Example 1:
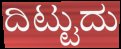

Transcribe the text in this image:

ದಿಟ್ಟುದು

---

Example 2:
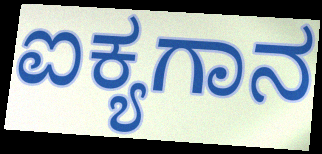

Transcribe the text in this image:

ಐಕ್ಯಗಾನ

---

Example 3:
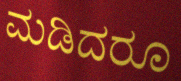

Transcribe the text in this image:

ಮಡಿದರೂ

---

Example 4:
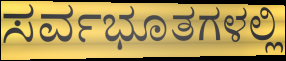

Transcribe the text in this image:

ಸರ್ವಭೂತಗಳಲ್ಲಿ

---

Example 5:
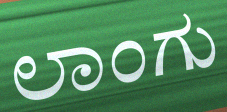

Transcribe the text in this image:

ಲಾಂಗು